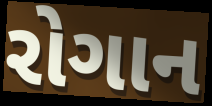
રોગાન